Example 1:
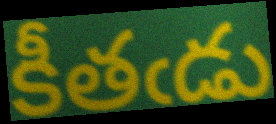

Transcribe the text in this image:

కీతఁడు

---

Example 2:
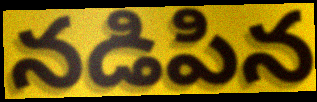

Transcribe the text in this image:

నడిపిన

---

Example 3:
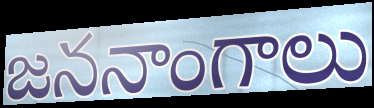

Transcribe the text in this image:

జననాంగాలు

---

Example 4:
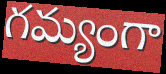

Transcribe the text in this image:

గమ్యంగా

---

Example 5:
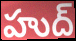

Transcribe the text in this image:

హుద్